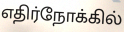
எதிர்நோக்கில்